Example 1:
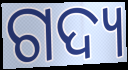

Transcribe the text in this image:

ଗଦ୍ୟ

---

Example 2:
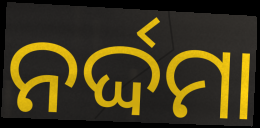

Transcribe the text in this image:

ନର୍ଦ୍ଦମା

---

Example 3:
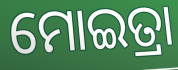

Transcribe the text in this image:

ମୋଇତ୍ରା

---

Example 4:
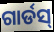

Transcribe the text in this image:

ଗାର୍ଡସ୍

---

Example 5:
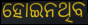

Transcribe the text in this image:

ହୋଇନଥିବ